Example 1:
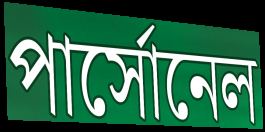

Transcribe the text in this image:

পার্সোনেল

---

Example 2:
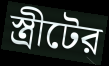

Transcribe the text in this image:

স্ত্রীটের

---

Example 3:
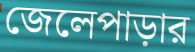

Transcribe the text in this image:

জেলেপাড়ার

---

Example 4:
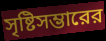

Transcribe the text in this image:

সৃষ্টিসম্ভারের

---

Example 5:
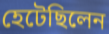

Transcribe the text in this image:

হেটেছিলেন